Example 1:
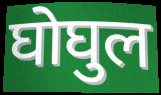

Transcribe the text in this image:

घोघुल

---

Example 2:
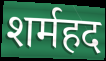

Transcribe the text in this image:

शर्महद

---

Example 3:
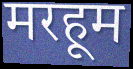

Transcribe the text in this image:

मरहूम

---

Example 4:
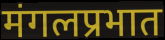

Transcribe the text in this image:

मंगलप्रभात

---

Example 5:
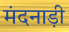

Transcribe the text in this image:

मंदनाड़ी